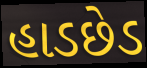
હાડછેડ